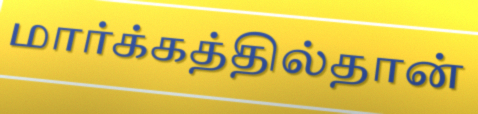
மார்க்கத்தில்தான்